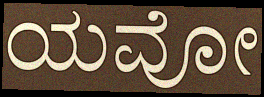
ಯವೋ